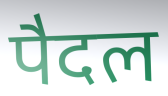
पैदल